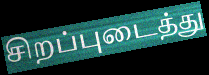
சிறப்புடைத்து